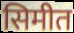
सिमीत